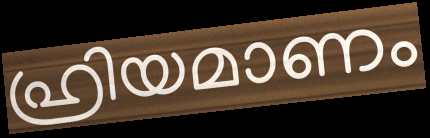
ഹ്രിയമാണം